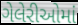
ગેલેરીઓમાં